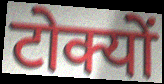
टोक्यों